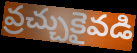
వ్రచ్చుకైవడి